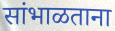
सांभाळताना